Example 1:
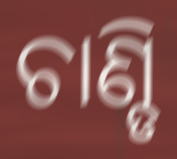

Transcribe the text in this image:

ଚାଣ୍ଡି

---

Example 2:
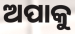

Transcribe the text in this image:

ଅପାକୁ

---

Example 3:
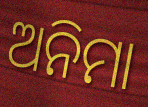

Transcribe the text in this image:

ଅନିମା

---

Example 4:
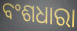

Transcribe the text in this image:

ବଂଶଧାରା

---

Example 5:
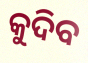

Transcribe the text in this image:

କୁଦିବ